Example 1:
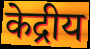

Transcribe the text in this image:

केद्रीय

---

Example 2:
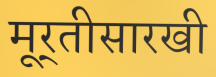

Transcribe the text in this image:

मूर्तीसारखी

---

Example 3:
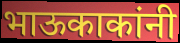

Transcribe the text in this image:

भाऊकाकांनी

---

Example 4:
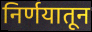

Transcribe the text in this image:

निर्णयातून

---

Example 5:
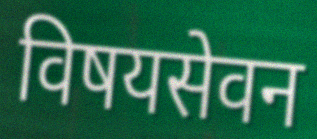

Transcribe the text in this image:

विषयसेवन